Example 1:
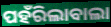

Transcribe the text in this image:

ପହଁରିଲାବାଲା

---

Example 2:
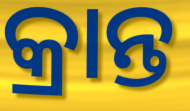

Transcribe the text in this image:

କ୍ରାନ୍ତ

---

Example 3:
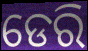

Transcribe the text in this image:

ଡେରି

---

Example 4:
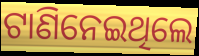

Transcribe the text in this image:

ଟାଣିନେଇଥିଲେ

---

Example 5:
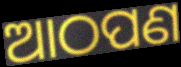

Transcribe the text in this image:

ଆଠପଣ